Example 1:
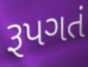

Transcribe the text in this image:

રૂપગતં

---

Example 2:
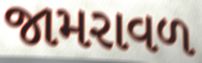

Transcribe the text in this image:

જામરાવળ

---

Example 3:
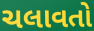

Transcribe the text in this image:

ચલાવતો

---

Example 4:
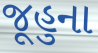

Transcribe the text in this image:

જૂહુના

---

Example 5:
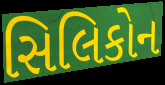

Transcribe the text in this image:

સિલિકોન